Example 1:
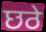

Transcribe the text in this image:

छठे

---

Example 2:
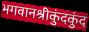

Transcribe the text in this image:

भगवानश्रीकुंदकुंद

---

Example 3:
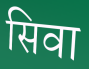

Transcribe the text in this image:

सिवा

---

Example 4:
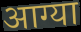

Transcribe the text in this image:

आग्या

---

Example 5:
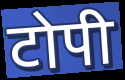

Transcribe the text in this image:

टोपी